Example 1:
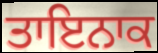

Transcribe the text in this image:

ਤਾਇਨਾਕ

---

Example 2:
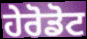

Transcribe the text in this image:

ਹੇਰੋਡੋਟ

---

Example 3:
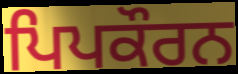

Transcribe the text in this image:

ਪਿਪਕੌਰਨ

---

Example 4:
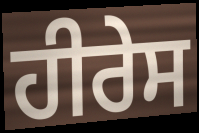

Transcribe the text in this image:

ਹੀਰੇਸ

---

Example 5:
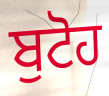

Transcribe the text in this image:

ਬੁਟੋਹ